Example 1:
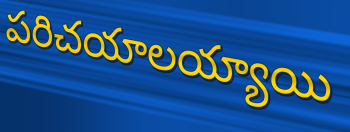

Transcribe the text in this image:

పరిచయాలయ్యాయి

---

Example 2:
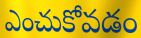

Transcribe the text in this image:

ఎంచుకోవడం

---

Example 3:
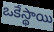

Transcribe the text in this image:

ఒకేస్థాయి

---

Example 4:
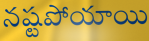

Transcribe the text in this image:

నష్టపోయాయి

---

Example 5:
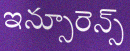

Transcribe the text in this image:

ఇన్సూరెన్స్